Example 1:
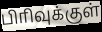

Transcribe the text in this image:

பிரிவுக்குள்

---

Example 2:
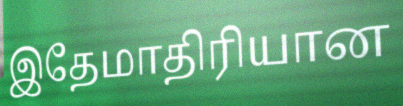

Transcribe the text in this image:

இதேமாதிரியான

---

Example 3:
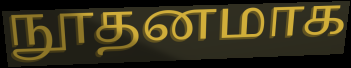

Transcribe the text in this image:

நூதனமாக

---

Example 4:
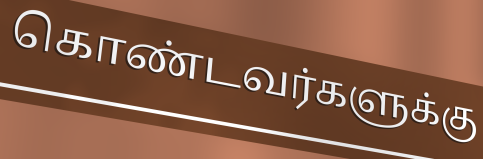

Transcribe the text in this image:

கொண்டவர்களுக்கு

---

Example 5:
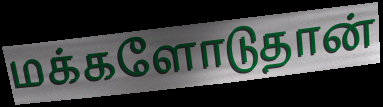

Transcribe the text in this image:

மக்களோடுதான்